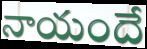
నాయందే